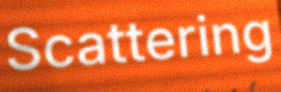
Scattering